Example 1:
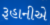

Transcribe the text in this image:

રૂહાનીએ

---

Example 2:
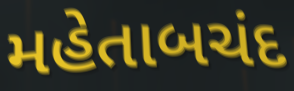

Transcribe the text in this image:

મહેતાબચંદ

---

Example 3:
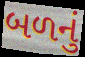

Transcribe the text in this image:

બળનું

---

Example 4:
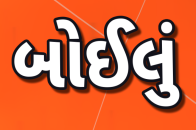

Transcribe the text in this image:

બોઈલું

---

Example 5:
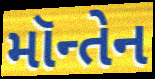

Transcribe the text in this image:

મૉન્તેન